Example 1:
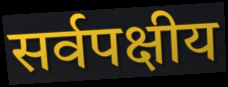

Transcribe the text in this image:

सर्वपक्षीय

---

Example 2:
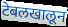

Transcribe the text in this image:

टेबलखालून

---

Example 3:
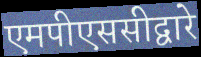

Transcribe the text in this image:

एमपीएससीद्वारे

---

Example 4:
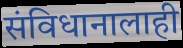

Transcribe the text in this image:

संविधानालाही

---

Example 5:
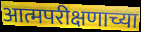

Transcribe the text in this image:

आत्मपरीक्षणाच्या